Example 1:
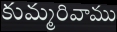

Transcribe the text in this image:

కుమ్మరివాము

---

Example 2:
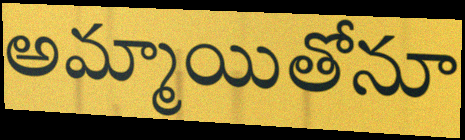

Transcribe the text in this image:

అమ్మాయితోనూ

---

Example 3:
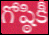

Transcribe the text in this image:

గోష్ఠికీ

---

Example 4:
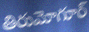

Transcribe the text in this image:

తిరుమోగూర్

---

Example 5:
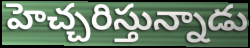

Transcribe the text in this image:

హెచ్చరిస్తున్నాడు